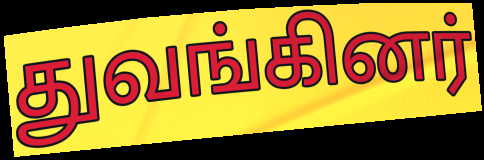
துவங்கினர்